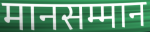
मानसम्मान